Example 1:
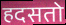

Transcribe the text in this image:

हदसतो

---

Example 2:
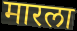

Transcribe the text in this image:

मारला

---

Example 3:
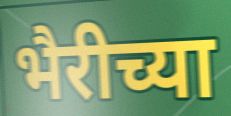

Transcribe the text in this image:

भैरीच्या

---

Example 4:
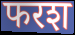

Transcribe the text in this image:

फरश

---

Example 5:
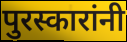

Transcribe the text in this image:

पुरस्कारांनी